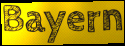
Bayern